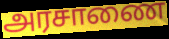
அரசாணை